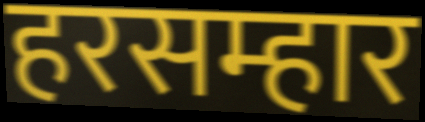
हरसम्हार